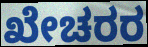
ಖೇಚರರ